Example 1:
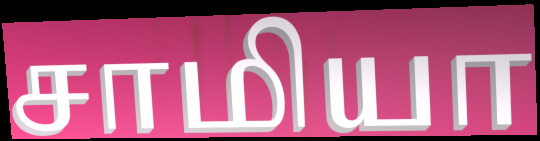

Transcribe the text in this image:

சாமியா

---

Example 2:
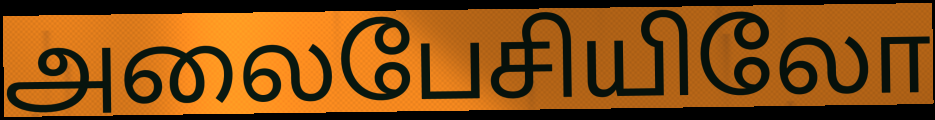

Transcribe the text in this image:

அலைபேசியிலோ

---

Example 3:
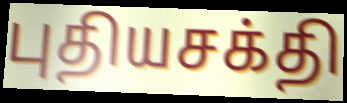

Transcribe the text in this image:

புதியசக்தி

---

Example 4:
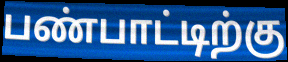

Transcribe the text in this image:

பண்பாட்டிற்கு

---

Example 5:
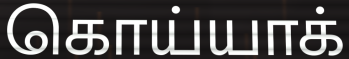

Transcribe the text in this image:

கொய்யாக்